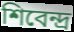
শিবেন্দ্র